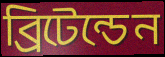
ব্রিটেন্ডেন